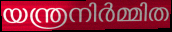
യന്ത്രനിർമ്മിത